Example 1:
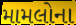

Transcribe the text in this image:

મામલોના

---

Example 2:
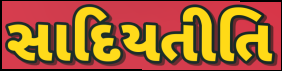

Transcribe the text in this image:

સાદિયતીતિ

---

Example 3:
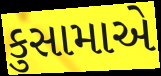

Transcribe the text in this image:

કુસામાએ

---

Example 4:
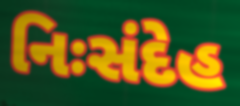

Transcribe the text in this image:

નિઃસંદેહ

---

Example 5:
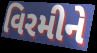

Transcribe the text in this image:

વિરમીને